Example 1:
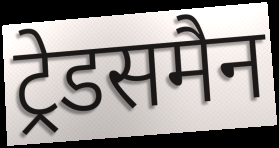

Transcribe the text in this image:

ट्रेडसमैन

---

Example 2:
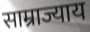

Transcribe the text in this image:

साम्राज्याय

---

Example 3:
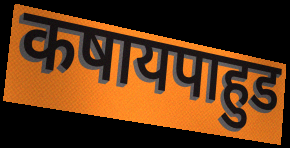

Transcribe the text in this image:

कषायपाहुड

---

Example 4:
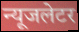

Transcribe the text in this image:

न्यूजलेटर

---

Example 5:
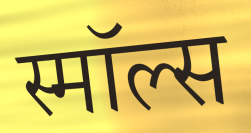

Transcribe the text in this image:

स्मॉल्स